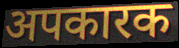
अपकारक